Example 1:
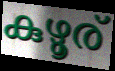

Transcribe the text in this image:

കുഴൂര്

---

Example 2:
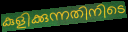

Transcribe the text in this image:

കുളിക്കുന്നതിനിടെ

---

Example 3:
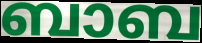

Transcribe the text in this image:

ബാബ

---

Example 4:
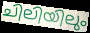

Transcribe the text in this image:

ചിലിയിലും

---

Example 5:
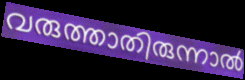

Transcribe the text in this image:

വരുത്താതിരുന്നാൽ